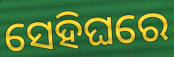
ସେହିଘରେ